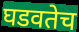
घडवतेच